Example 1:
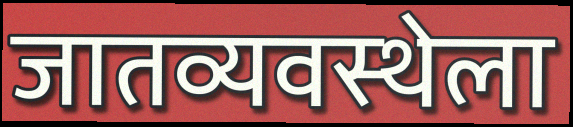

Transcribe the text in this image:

जातव्यवस्थेला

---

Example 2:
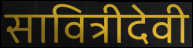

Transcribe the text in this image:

सावित्रीदेवी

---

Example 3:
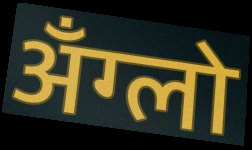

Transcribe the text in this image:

अँग्लो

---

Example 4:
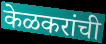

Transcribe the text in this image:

केळकरांची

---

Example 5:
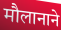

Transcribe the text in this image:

मौलानाने